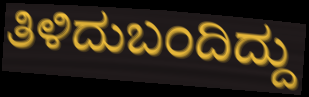
ತಿಳಿದುಬಂದಿದ್ದು